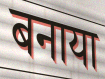
बनाया